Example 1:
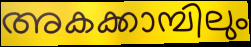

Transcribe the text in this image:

അകക്കാമ്പിലും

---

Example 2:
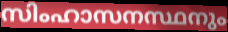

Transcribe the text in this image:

സിംഹാസനസ്ഥനും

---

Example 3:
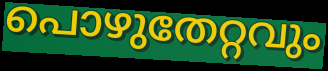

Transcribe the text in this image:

പൊഴുതേറ്റവും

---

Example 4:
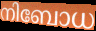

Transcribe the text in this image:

നിബോധ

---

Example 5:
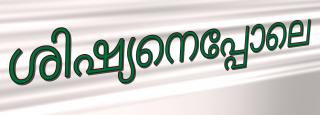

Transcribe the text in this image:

ശിഷ്യനെപ്പോലെ